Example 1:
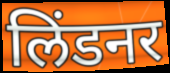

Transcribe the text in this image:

लिंडनर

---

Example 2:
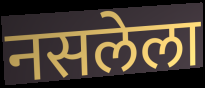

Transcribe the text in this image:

नसलेला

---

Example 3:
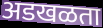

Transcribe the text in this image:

अडखळता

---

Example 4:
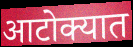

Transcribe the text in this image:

आटोक्यात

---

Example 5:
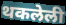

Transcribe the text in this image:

थकलेली